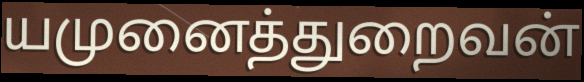
யமுனைத்துறைவன்